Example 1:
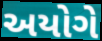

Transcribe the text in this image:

અયોગે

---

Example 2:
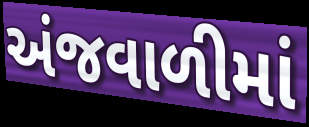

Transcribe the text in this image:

અંજવાળીમાં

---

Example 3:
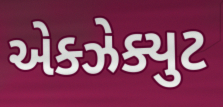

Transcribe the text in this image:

એક્ઝેક્યુટ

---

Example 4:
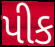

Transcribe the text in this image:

પીક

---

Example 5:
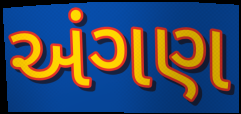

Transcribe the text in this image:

અંગણ